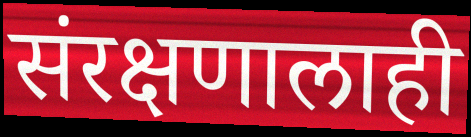
संरक्षणालाही